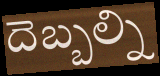
దెబ్బల్ని